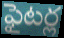
ఫైటర్ల